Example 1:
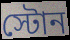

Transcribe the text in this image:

স্টোন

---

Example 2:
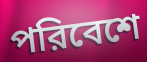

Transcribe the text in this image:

পরিবেশে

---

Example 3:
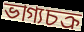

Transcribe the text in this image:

ভাগ্যচক্র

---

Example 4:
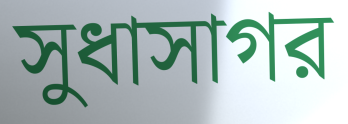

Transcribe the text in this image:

সুধাসাগর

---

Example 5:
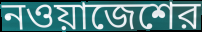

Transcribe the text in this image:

নওয়াজেশের